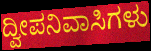
ದ್ವೀಪನಿವಾಸಿಗಳು